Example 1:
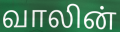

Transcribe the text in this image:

வாலின்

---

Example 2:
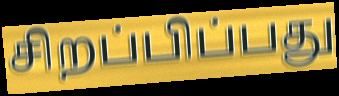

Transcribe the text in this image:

சிறப்பிப்பது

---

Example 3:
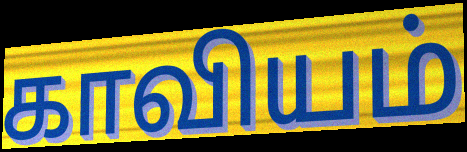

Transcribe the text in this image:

காவியம்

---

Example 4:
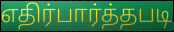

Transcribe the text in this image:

எதிர்பார்த்தபடி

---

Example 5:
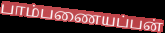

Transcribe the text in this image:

பாம்பணையப்பன்